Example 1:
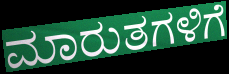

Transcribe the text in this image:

ಮಾರುತಗಳಿಗೆ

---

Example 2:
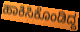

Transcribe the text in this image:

ಹಾಕಿಸಿಕೊಂಡಿದ್ದ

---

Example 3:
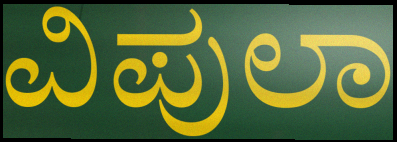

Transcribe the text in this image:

ವಿಪುಲಾ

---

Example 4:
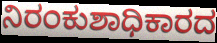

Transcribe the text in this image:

ನಿರಂಕುಶಾಧಿಕಾರದ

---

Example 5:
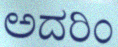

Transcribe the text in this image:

ಅದರಿಂ